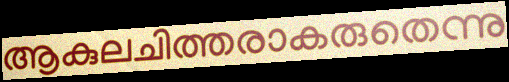
ആകുലചിത്തരാകരുതെന്നു